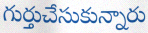
గుర్తుచేసుకున్నారు